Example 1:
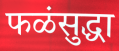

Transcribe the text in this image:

फळंसुद्धा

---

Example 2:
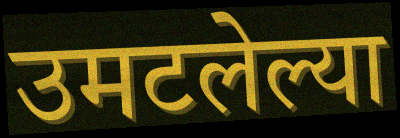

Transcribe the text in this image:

उमटलेल्या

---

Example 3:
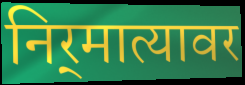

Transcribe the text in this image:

निर्मात्यावर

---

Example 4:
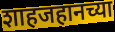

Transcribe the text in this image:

शाहजहानच्या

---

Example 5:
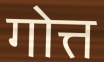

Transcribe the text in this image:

गोत्त